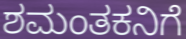
ಶಮಂತಕನಿಗೆ